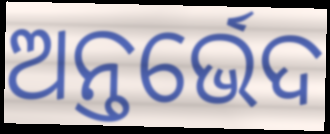
ଅନ୍ତର୍ଭେଦ